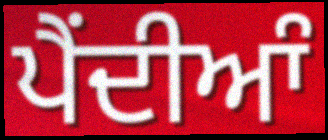
ਪੈੰਦੀਆੰ